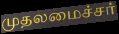
முதலமைச்சர்